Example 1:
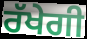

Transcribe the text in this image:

ਰੱਖੇਗੀ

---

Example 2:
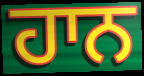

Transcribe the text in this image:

ਹਾਨ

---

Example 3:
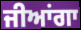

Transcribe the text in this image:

ਜੀਆਂਗਾ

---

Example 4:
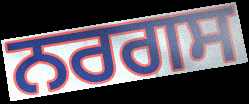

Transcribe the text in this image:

ਨਰਗਸ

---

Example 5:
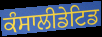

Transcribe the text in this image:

ਕੰਸਾਲੀਡੇਟਿਡ